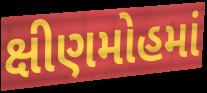
ક્ષીણમોહમાં